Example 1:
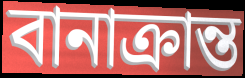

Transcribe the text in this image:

বানাক্ৰান্ত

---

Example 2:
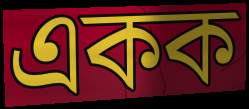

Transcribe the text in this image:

একক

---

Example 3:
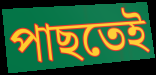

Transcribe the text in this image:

পাছতেই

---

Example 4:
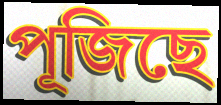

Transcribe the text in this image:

পূজিছে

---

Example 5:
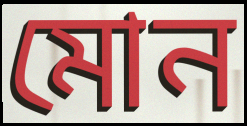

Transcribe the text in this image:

মোন